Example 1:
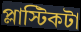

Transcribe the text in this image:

প্লাস্টিকটা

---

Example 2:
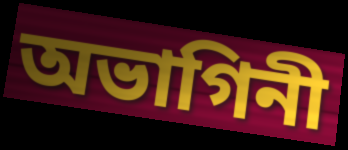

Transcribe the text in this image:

অভাগিনী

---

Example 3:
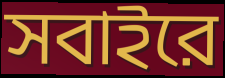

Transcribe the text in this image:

সবাইরে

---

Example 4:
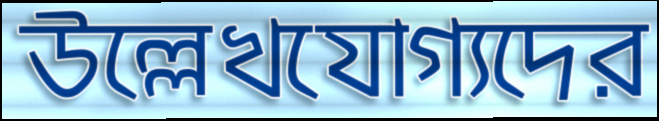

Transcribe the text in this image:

উল্লেখযোগ্যদের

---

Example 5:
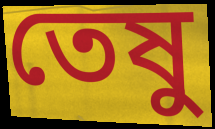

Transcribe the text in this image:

তেষু